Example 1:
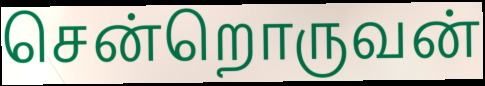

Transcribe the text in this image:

சென்றொருவன்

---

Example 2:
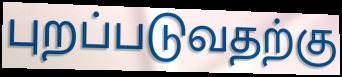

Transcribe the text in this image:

புறப்படுவதற்கு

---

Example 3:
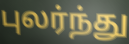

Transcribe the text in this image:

புலர்ந்து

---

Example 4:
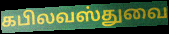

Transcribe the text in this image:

கபிலவஸ்துவை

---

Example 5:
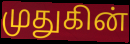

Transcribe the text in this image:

முதுகின்